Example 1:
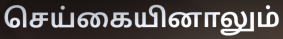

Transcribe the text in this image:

செய்கையினாலும்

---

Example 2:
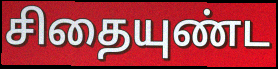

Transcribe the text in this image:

சிதையுண்ட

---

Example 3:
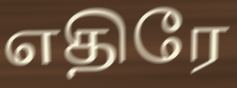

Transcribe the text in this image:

எதிரே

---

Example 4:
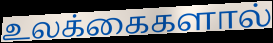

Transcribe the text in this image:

உலக்கைகளால்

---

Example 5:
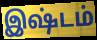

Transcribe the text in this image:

இஷ்டம்